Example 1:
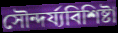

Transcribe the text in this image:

সৌন্দর্য্যবিশিষ্টা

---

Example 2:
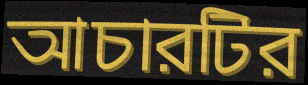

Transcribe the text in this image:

আচারটির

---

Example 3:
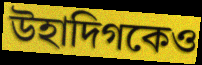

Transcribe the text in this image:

উহাদিগকেও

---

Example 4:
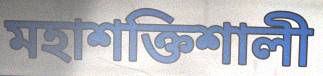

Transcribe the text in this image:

মহাশক্তিশালী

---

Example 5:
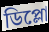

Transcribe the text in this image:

ডিপ্লো